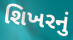
શિખરનું